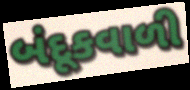
બંદૂકવાળી